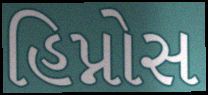
હિપ્નોસ